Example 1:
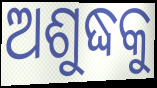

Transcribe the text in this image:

ଅଶୁଦ୍ଧକୁ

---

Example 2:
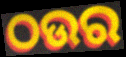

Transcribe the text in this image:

ଠଉର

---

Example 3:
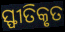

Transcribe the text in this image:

ସ୍ଫୀତିକୃତ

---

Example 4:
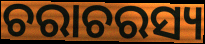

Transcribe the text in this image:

ଚରାଚରସ୍ୟ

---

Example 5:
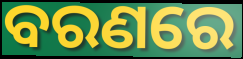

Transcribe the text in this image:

ବରଣରେ